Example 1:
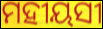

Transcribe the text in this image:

ମହୀୟସୀ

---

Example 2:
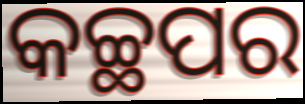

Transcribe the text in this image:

କଚ୍ଛପର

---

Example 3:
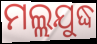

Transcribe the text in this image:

ମଲ୍ଲଯୁଦ୍ଧ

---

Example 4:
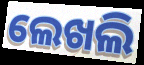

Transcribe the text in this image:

ଲେଖଲି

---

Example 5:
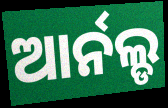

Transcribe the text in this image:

ଆର୍ନଲ୍ଡ